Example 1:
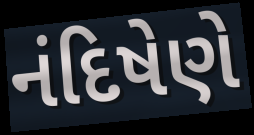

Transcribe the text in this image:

નંદિષેણે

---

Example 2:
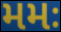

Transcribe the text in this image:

મમઃ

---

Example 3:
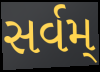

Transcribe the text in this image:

સર્વમ્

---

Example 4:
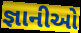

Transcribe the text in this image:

જ્ઞાનીઓ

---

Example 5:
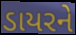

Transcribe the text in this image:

ડાયરને